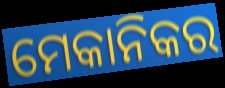
ମେକାନିକର